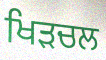
ਖਿੜਚਲ